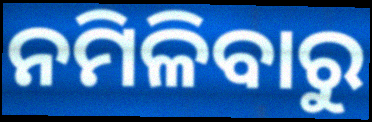
ନମିଳିବାରୁ